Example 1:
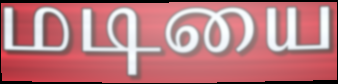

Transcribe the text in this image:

மடியை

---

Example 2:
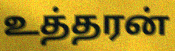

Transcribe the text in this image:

உத்தரன்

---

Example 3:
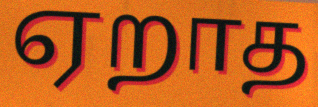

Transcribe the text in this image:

ஏறாத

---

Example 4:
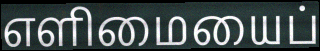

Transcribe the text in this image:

எளிமையைப்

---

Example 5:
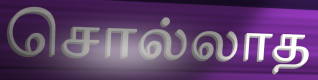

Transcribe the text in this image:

சொல்லாத